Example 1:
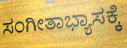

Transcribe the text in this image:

ಸಂಗೀತಾಭ್ಯಾಸಕ್ಕೆ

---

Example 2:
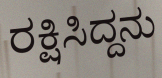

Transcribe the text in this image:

ರಕ್ಷಿಸಿದ್ದನು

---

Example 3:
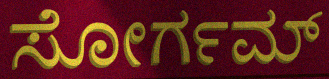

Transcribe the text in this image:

ಸೋರ್ಗಮ್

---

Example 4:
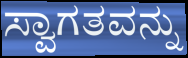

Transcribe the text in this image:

ಸ್ವಾಗತವನ್ನು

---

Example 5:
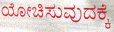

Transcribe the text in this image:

ಯೋಚಿಸುವುದಕ್ಕೆ